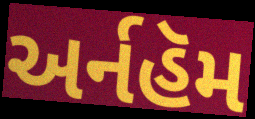
અર્નહૅમ